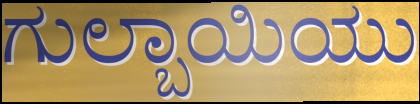
ಗುಲ್ಬಾಯಿಯು